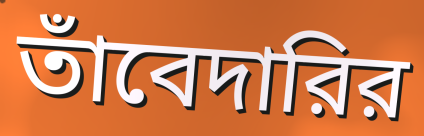
তাঁবেদারির